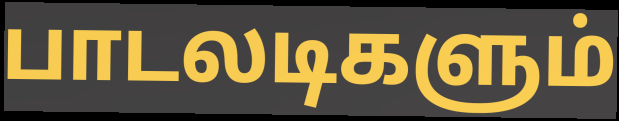
பாடலடிகளும்